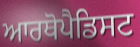
ਆਰਥੋਪੈਡਿਸਟ